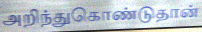
அறிந்துகொண்டுதான்